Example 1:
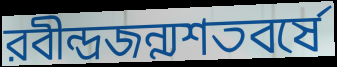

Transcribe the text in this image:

রবীন্দ্রজন্মশতবর্ষে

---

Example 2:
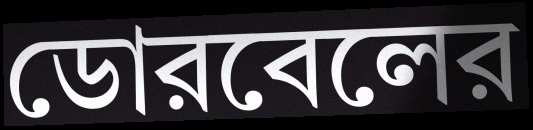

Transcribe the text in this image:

ডোরবেলের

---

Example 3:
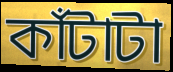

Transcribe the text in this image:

কাঁটাটা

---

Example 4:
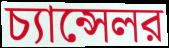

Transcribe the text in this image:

চ্যান্সেলর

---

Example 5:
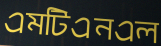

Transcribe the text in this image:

এমটিএনএল